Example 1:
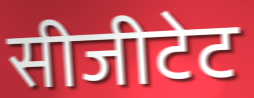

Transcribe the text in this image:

सीजीटेट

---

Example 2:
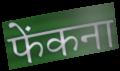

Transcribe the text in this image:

फेंकना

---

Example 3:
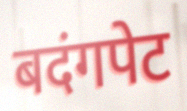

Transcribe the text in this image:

बदंगपेट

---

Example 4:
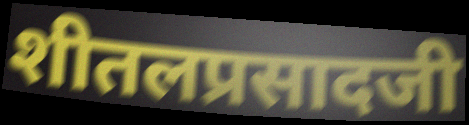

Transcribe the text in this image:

शीतलप्रसादजी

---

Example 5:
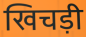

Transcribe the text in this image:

खिचड़ी